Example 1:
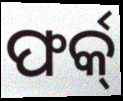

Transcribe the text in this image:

ଫର୍କ୍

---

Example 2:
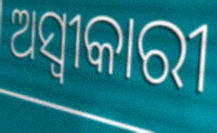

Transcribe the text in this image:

ଅସ୍ଵୀକାରୀ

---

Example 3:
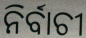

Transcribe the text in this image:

ନିର୍ବାଚୀ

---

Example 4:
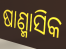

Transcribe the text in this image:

ଷାଣ୍ମାସିକ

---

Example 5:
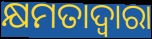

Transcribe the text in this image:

କ୍ଷମତାଦ୍ୱାରା